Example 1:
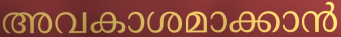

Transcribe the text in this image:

അവകാശമാക്കാൻ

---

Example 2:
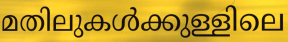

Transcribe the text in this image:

മതിലുകൾക്കുള്ളിലെ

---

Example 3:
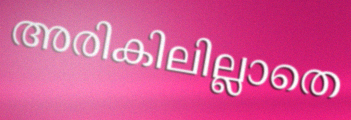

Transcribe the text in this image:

അരികിലില്ലാതെ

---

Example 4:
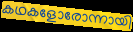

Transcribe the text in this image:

കഥകളോരോന്നായി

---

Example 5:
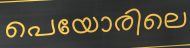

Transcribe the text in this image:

പെയോരിലെ